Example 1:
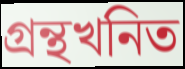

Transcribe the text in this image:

গ্ৰন্থখনিত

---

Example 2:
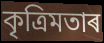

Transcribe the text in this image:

কৃত্ৰিমতাৰ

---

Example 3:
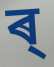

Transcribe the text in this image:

ৰ্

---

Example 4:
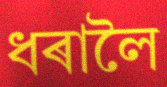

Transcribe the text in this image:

ধৰালৈ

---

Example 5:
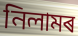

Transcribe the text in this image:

নিলামৰ